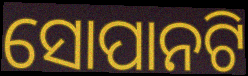
ସୋପାନଟି